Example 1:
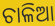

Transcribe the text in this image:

ଚାଳିଆ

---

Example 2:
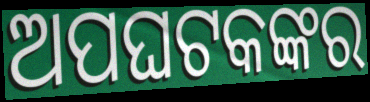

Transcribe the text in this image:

ଅପଘଟକଙ୍କର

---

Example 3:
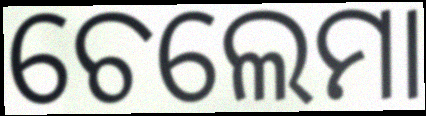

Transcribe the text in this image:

ଚେଲେମା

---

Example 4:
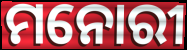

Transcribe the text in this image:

ମନୋରୀ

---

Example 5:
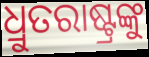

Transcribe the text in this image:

ଧ୍ରୁତରାଷ୍ଟ୍ରଙ୍କୁ